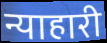
न्याहारी